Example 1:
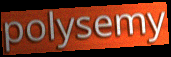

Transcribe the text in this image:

polysemy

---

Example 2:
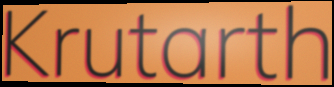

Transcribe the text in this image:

Krutarth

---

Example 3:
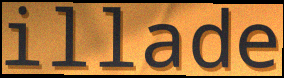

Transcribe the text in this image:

illade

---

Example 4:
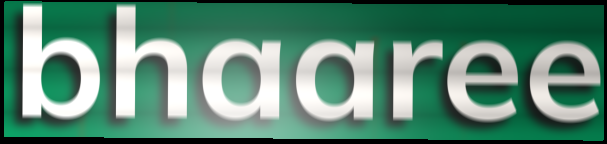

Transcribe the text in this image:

bhaaree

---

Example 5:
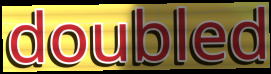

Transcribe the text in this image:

doubled